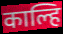
काल्हि